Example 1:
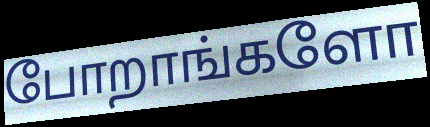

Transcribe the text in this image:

போறாங்களோ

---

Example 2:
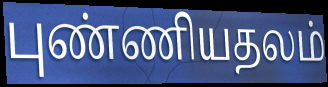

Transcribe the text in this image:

புண்ணியதலம்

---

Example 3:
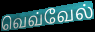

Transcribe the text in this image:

வெவ்வேல்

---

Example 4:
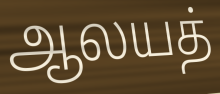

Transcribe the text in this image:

ஆலயத்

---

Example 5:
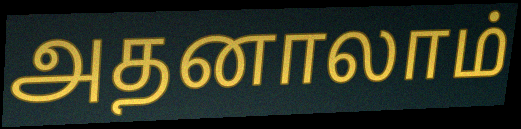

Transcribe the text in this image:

அதனாலாம்